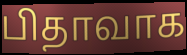
பிதாவாக